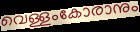
വെള്ളംകോരാനും